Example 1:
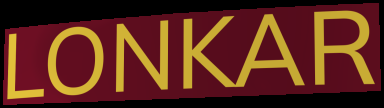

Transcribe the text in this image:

LONKAR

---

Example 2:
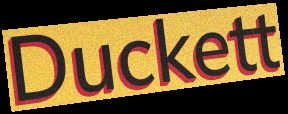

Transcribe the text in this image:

Duckett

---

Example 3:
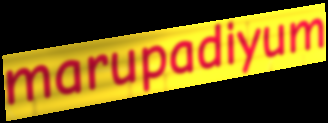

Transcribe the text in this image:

marupadiyum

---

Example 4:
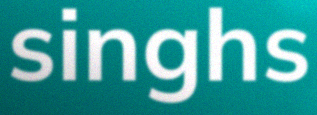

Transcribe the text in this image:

singhs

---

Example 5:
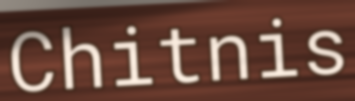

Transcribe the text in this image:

Chitnis